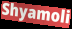
Shyamoli